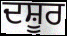
ਦਸ਼ੂਰ